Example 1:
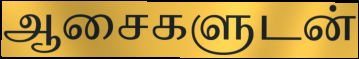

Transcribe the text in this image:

ஆசைகளுடன்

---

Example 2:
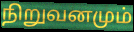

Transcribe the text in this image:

நிறுவனமும்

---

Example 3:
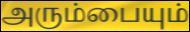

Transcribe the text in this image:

அரும்பையும்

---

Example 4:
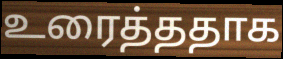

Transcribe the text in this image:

உரைத்ததாக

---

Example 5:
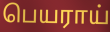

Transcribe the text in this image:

பெயராய்